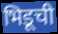
भिडूची